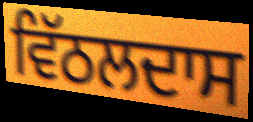
ਵਿੱਠਲਦਾਸ